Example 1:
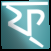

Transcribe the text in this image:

ফ্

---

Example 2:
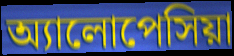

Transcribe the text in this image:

অ্যালোপেসিয়া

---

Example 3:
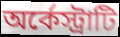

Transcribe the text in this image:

অর্কেস্ট্রাটি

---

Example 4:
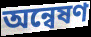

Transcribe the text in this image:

অন্বেষণ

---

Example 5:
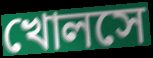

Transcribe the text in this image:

খোলসে